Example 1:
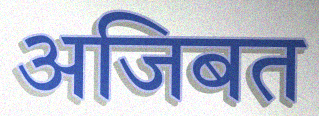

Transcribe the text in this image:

अजिबत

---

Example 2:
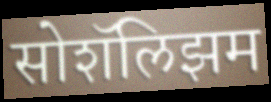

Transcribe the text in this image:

सोशॅलिझम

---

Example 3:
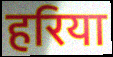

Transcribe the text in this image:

हरिया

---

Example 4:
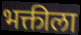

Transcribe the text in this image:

भक्तीला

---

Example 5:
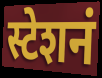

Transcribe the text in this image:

स्टेशनं